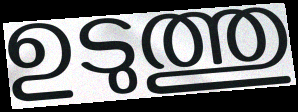
ഉടുത്തു